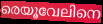
രെയൂവേലിനെ